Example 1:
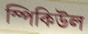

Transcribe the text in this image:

স্পিকিউল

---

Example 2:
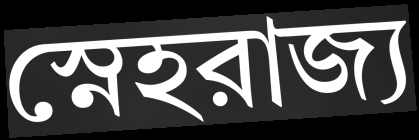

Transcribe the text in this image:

স্নেহরাজ্য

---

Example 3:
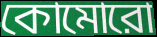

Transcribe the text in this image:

কোমোরো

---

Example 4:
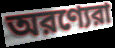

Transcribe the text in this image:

অরণ্যেরা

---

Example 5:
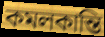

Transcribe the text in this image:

কমলকান্তি